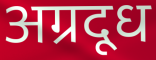
अग्रदूध